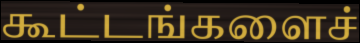
கூட்டங்களைச்